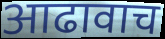
आढावाच